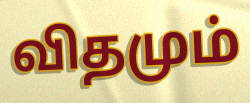
விதமும்